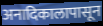
अनादिकालापासून